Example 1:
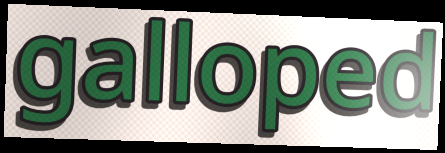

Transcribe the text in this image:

galloped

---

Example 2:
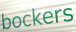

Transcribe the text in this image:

bockers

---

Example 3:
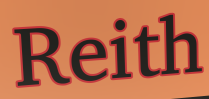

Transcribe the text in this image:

Reith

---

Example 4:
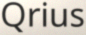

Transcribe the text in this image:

Qrius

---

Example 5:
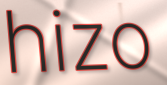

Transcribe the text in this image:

hizo